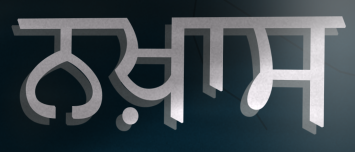
ਨਖ਼ਾਸ